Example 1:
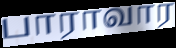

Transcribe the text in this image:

பாராவார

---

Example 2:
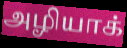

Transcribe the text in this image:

அழியாக்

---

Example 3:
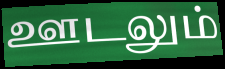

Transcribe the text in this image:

ஊடலும்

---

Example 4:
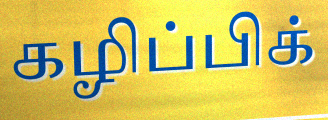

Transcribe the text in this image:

கழிப்பிக்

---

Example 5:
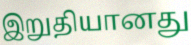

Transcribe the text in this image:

இறுதியானது